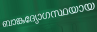
ബാങ്കുദ്യോഗസ്ഥയായ